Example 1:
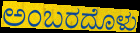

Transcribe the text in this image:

ಅಂಬರದೊಳು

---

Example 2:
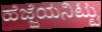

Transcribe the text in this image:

ಹೆಜ್ಜೆಯನಿಟ್ಟು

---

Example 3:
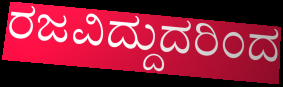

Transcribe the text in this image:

ರಜವಿದ್ದುದರಿಂದ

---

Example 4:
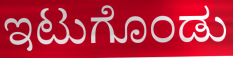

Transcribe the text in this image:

ಇಟುಗೊಂಡು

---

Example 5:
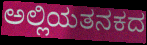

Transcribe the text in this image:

ಅಲ್ಲಿಯತನಕದ